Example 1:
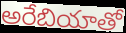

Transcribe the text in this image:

అరేబియాతో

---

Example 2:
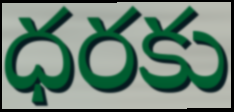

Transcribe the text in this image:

ధరకు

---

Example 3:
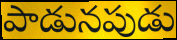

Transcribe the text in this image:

పాడునపుడు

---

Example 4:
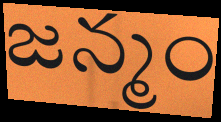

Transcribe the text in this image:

జన్మం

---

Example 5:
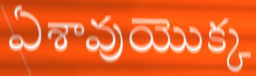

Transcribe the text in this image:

ఏశావుయొక్క